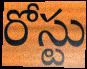
రోస్టు